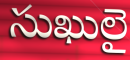
సుఖులై